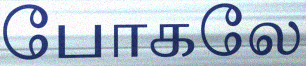
போகலே